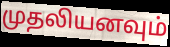
முதலியனவும்